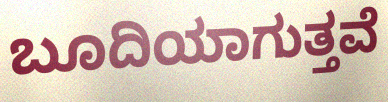
ಬೂದಿಯಾಗುತ್ತವೆ